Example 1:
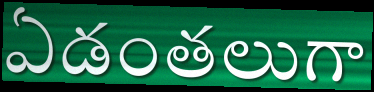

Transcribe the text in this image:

ఏడంతలుగా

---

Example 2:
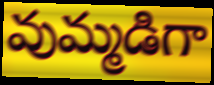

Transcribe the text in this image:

వుమ్మడిగా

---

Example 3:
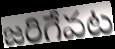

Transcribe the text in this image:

జరిగేవట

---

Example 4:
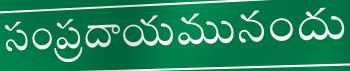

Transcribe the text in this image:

సంప్రదాయమునందు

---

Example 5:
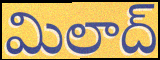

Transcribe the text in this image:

మిలాద్